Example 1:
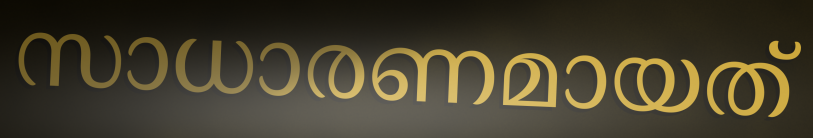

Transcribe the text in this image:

സാധാരണമായത്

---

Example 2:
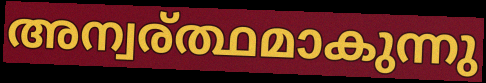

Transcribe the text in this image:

അന്വര്ത്ഥമാകുന്നു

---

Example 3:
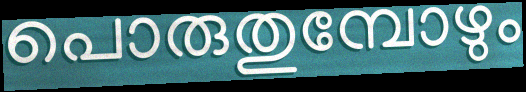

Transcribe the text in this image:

പൊരുതുമ്പോഴും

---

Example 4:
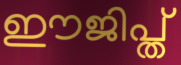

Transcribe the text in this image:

ഈജിപ്ത്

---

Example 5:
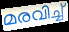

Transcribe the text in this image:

മരവിച്ച്